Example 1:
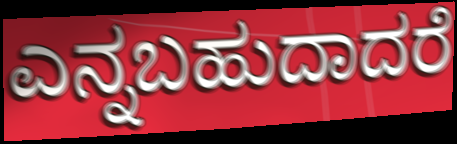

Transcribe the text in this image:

ಎನ್ನಬಹುದಾದರೆ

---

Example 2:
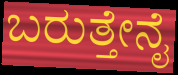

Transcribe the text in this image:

ಬರುತ್ತೇನೈ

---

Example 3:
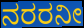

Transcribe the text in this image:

ನರರನೀ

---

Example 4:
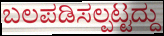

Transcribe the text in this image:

ಬಲಪಡಿಸಲ್ಪಟ್ಟದ್ದು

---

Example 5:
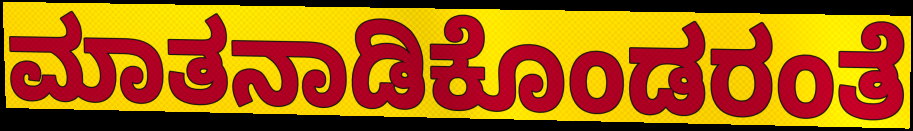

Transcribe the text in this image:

ಮಾತನಾಡಿಕೊಂಡರಂತೆ